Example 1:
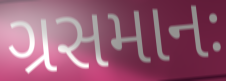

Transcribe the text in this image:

ગ્રસમાનઃ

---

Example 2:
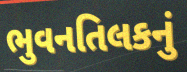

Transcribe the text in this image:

ભુવનતિલકનું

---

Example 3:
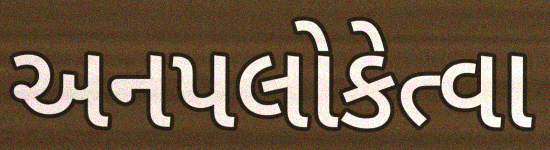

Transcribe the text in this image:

અનપલોકેત્વા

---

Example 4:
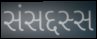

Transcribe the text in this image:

સંસદ્દસ્સ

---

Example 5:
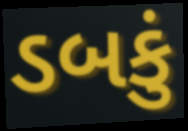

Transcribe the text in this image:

ડબકું